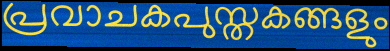
പ്രവാചകപുസ്തകങ്ങളും